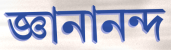
জ্ঞানানন্দ